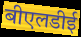
बीएलडीई